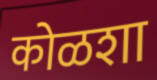
कोळशा